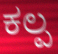
ಕಲ್ಪ